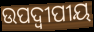
ଉପଦ୍ଵୀପୀୟ